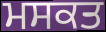
ਮਸਕਤ